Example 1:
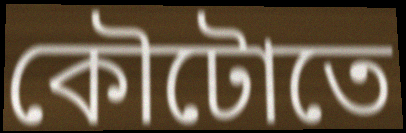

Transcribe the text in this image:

কৌটোতে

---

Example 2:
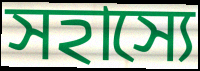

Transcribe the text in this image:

সহাস্যে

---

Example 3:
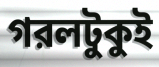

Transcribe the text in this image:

গরলটুকুই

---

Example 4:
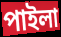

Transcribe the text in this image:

পাইলা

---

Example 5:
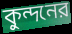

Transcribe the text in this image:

কুন্দনের